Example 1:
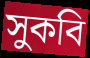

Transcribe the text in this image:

সুকবি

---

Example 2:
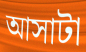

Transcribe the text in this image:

আসাটা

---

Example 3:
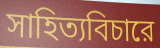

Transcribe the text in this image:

সাহিত্যবিচারে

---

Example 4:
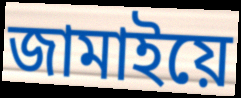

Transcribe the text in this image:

জামাইয়ে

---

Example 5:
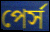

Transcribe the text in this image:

পের্স